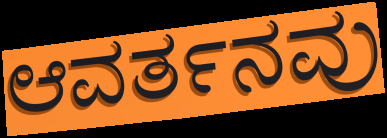
ಆವರ್ತನವು